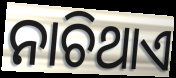
ନାଚିଥାଏ